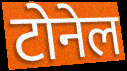
टोनेल